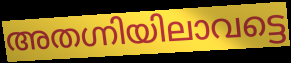
അതഗ്നിയിലാവട്ടെ